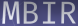
MBIR